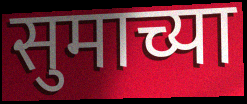
सुमाच्या